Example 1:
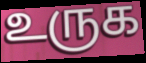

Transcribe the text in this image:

உருக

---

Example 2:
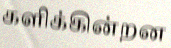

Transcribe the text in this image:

களிக்கின்றன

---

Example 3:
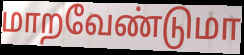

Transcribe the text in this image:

மாறவேண்டுமா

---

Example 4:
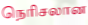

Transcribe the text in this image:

நெரிசலான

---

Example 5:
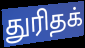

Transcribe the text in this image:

துரிதக்